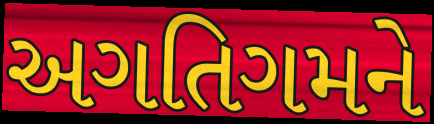
અગતિગમને